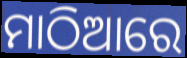
ମାଠିଆରେ